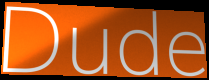
Dude